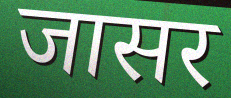
जासर